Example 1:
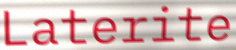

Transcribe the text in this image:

Laterite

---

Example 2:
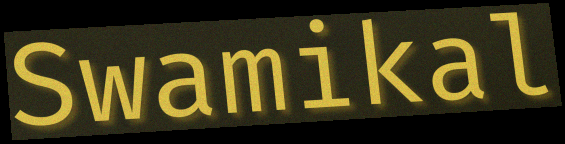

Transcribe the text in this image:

Swamikal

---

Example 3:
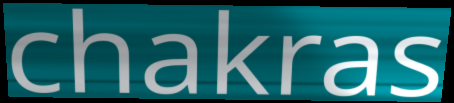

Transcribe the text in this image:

chakras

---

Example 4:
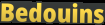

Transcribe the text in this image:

Bedouins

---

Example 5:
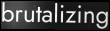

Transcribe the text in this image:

brutalizing